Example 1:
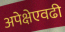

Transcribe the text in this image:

अपेक्षेएवढी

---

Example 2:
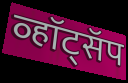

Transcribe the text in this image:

व्हॉट्सॅप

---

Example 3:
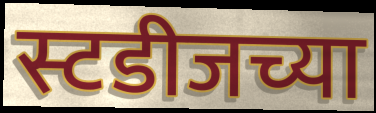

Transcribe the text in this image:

स्टडीजच्या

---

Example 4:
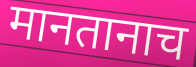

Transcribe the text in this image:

मानतानाच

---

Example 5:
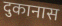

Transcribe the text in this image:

दुकानास